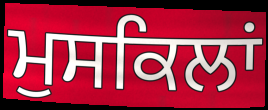
ਮੁਸਕਿਲਾਂ